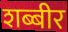
शब्बीर